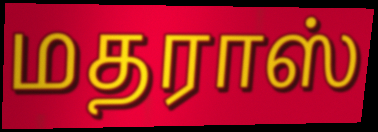
மதராஸ்